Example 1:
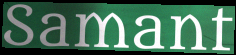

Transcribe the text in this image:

Samant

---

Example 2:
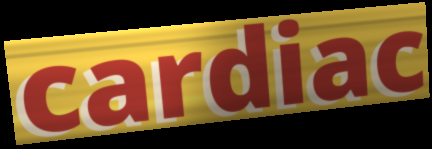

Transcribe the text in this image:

cardiac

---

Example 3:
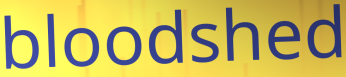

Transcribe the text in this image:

bloodshed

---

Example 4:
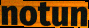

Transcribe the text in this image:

notun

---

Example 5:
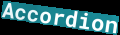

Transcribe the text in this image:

Accordion